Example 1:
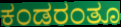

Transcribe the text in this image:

ಕಂಡರಂತೂ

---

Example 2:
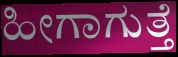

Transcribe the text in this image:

ಹೀಗಾಗುತ್ತೆ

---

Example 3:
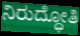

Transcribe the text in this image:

ನಿರುದ್ಧೋತಿ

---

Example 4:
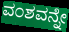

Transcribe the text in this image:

ವಂಶವನ್ನೇ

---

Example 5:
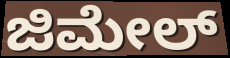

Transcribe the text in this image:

ಜಿಮೇಲ್